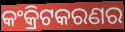
କଂକ୍ରିଟକରଣର